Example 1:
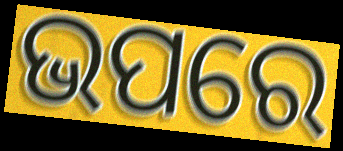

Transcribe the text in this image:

ଭପରେ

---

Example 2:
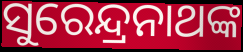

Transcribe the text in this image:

ସୁରେନ୍ଦ୍ରନାଥଙ୍କ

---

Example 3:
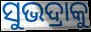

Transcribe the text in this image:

ସୁଭଦ୍ରାକୁ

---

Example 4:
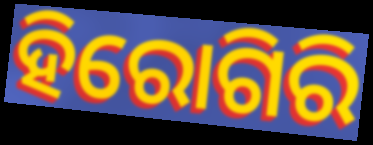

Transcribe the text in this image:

ହିରୋଗିରି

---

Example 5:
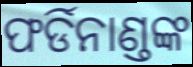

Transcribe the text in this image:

ଫର୍ଡିନାଣ୍ଡଙ୍କ